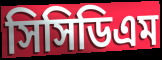
সিসিডিএম